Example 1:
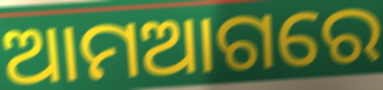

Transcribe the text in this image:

ଆମଆଗରେ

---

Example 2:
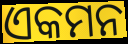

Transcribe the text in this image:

ଏକମନ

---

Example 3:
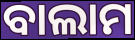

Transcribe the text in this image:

ବାଲାମ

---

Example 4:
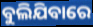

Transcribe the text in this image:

ବୁଲିଯିବାରେ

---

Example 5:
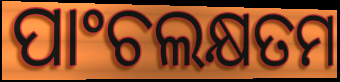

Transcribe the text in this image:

ପାଂଚଲକ୍ଷତମ